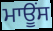
ਮਾਊਂਸ